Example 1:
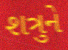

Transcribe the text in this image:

શત્રુને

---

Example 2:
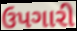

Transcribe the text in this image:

ઉપગારી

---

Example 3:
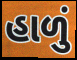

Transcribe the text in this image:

હાળું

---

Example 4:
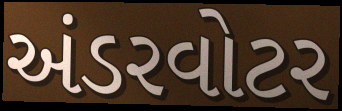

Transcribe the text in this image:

અંડરવોટર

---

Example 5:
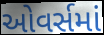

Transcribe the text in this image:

ઓવર્સમાં